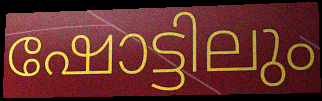
ഷോട്ടിലും